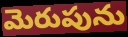
మెరుపును